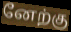
னேற்கு